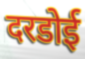
दरडोई